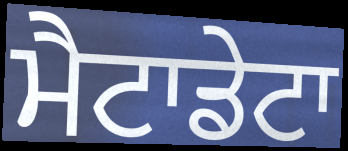
ਮੈਟਾਡੇਟਾ